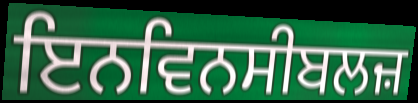
ਇਨਵਿਨਸੀਬਲਜ਼